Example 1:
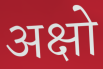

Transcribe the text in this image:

अक्षो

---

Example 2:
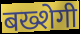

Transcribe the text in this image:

बख्शेगी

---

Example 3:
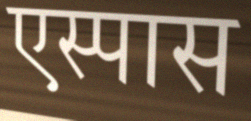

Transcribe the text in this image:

एस्पास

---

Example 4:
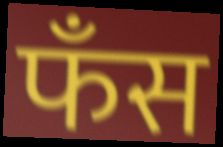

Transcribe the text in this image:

फँस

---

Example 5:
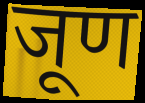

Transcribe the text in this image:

जूण